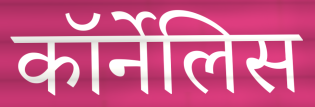
कॉर्नेलिस